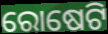
ରୋଷେଟି